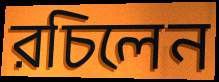
রচিলেন